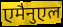
एमैनुएल